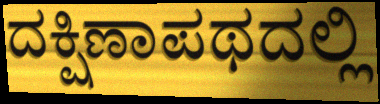
ದಕ್ಷಿಣಾಪಥದಲ್ಲಿ